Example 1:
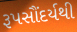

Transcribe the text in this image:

રૂપસૌંદર્યથી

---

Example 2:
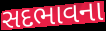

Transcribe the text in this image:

સદભાવના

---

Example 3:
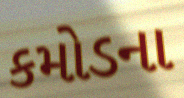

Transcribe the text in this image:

કમોડના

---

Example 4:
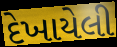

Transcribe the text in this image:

દેખાયેલી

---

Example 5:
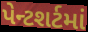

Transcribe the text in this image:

પેન્ટશર્ટમાં